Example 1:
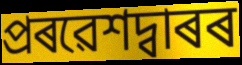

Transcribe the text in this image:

প্ৰৰৱেশদ্বাৰৰ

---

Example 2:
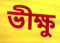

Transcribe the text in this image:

ভীক্ষু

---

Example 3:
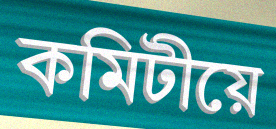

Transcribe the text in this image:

কমিটীয়ে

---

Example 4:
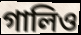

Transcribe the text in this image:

গালিও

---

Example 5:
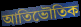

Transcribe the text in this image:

আতিভৌতিক